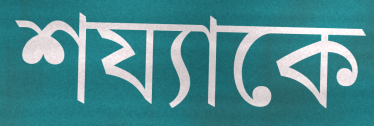
শয্যাকে